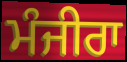
ਮੰਜੀਰਾ